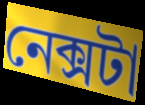
নেক্সটা